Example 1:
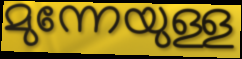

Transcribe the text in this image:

മുന്നേയുള്ള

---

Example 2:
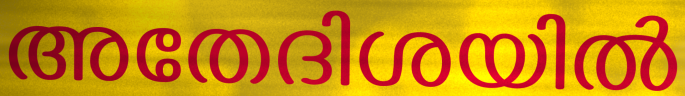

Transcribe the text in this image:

അതേദിശയിൽ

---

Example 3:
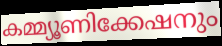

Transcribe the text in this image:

കമ്മ്യൂണിക്കേഷനും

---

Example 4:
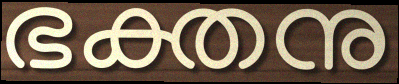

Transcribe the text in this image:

ഭക്തനു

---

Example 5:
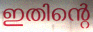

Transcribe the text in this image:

ഇതിന്റെ